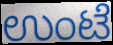
ಉಂಟೆ